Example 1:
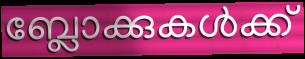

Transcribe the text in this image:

ബ്ലോക്കുകൾക്ക്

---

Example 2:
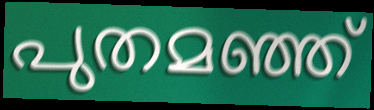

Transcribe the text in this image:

പുതമഞ്ഞ്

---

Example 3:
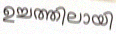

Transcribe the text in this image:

ഉച്ചത്തിലായി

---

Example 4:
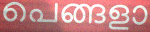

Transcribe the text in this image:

പെങ്ങളാ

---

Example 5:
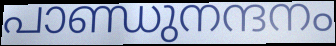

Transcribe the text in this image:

പാണ്ഡുനന്ദനം